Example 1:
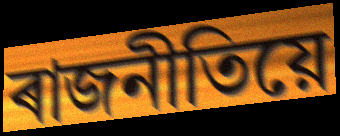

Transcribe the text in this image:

ৰাজনীতিয়ে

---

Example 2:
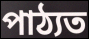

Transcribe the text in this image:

পাঠ্যত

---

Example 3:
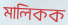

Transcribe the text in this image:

মালিকক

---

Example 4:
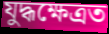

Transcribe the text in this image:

যুদ্ধক্ষেত্ৰত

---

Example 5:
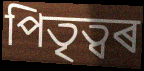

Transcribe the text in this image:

পিতৃত্বৰ